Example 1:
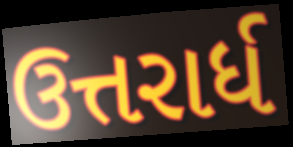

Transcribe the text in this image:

ઉત્તરાર્ધ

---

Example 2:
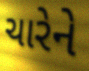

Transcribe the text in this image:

ચારેને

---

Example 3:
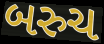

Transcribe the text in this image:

બરુચ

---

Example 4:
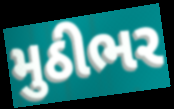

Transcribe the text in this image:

મુઠીભર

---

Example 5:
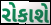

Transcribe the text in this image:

રોકાશે